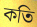
কতি